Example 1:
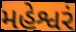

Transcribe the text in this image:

મહેશ્વરં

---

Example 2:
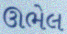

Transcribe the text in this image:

ઊભેલ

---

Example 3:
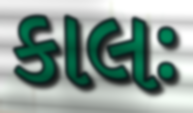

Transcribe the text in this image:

કાલઃ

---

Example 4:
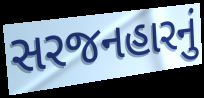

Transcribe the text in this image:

સરજનહારનું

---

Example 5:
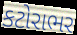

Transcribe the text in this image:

કટોરાભર